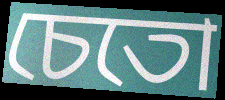
চেতো